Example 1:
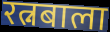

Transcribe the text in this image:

रत्नबाला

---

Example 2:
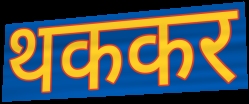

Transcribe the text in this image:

थककर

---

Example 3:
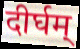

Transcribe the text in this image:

दीर्घम्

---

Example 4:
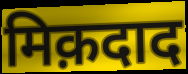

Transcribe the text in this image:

मिक़दाद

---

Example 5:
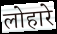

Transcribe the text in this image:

लोहारे